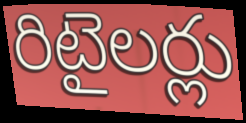
రిటైలర్లు